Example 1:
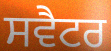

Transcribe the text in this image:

ਸਵੈਟਰ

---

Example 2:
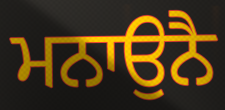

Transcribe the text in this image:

ਮਨਾਉਨੈ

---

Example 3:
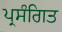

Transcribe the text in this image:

ਪ੍ਰਸੰਗਿਤ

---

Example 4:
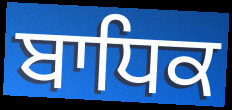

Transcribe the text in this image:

ਬਾਧਿਕ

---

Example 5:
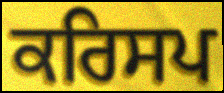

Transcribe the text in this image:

ਕਰਿਸਪ